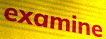
examine